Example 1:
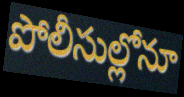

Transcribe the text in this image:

పోలీసుల్లోనూ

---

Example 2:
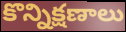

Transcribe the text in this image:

కొన్నిక్షణాలు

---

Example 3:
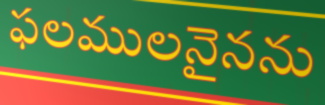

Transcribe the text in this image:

ఫలములనైనను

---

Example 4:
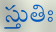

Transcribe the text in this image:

స్తుతిః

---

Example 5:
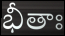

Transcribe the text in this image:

భీతాః